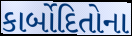
કાર્બોદિતોના